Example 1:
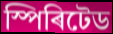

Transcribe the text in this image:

স্পিৰিটেড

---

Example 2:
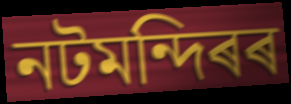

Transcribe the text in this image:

নটমন্দিৰৰ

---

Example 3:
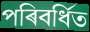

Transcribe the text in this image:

পৰিবৰ্ধিত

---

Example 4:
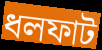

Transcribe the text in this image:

ধলফাট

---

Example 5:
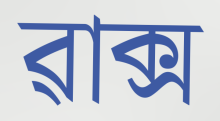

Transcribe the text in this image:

ৱাক্স